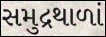
સમુદ્રથાળાં